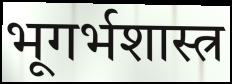
भूगर्भशास्त्र